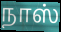
நாஸ்